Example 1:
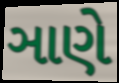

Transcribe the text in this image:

ઞાણે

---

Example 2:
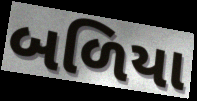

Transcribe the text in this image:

બળિયા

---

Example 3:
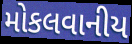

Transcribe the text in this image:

મોકલવાનીય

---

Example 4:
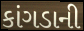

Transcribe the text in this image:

કાંગડાની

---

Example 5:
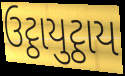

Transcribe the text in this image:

ઉટ્ઠાયુટ્ઠાય